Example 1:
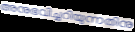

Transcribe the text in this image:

അനുഭവിച്ചറിയുന്നതിനു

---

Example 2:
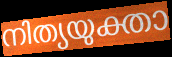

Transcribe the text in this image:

നിത്യയുക്താ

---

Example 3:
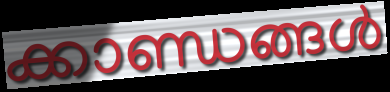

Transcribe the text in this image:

ക്കാണ്ഡങ്ങൾ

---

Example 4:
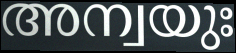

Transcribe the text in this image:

അന്വയുഃ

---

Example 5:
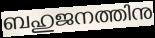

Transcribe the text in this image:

ബഹുജനത്തിനു